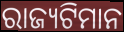
ରାଜ୍ୟଟିମାନ